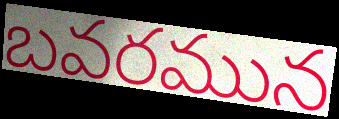
బవరమున